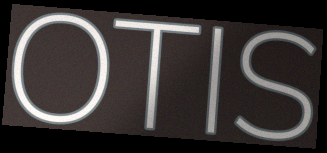
OTIS